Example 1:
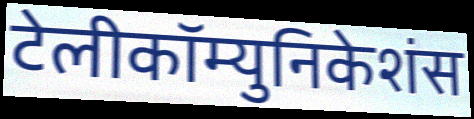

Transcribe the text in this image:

टेलीकॉम्युनिकेशंस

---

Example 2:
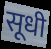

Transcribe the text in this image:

सूधी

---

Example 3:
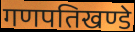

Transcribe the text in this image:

गणपतिखण्डे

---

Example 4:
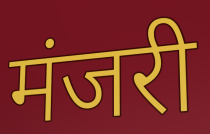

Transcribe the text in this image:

मंजरी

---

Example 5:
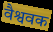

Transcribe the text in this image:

वैश्ववक